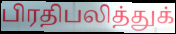
பிரதிபலித்துக்